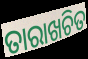
ତାରାଖଚିତ